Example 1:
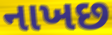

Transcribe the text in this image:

નાખછ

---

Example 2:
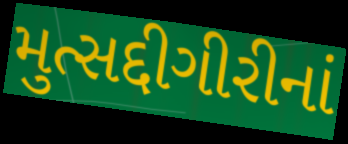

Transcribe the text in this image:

મુત્સદ્દીગીરીનાં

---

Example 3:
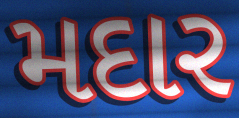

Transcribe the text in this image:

મદાર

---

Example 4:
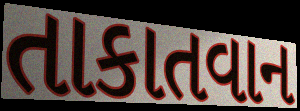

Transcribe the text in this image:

તાકાતવાન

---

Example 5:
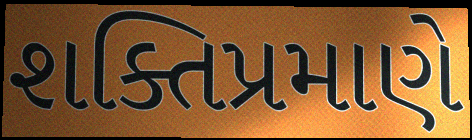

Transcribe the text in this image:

શક્તિપ્રમાણે